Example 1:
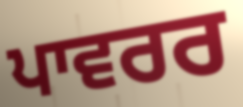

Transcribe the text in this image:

ਪਾਵਰਰ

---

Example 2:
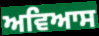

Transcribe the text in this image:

ਅਵਿਆਸ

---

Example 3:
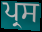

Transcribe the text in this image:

ਪ੍ਰਸ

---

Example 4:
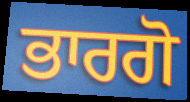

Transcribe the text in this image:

ਭਾਰਗੋ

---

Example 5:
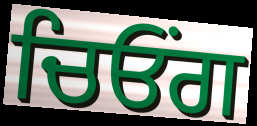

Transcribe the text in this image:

ਚਿਓਂਗ